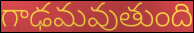
గాఢమవుతుంది